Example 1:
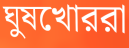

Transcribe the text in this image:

ঘুষখোররা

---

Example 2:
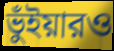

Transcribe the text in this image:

ভুঁইয়ারও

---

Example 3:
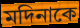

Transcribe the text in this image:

মদিনাকে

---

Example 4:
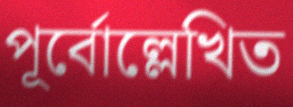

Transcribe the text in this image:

পূর্বোল্লেখিত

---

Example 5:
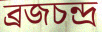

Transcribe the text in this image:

ব্রজচন্দ্র